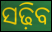
ସଢ଼ିବ